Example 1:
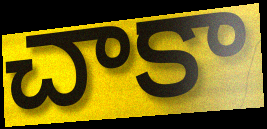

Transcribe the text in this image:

చాకా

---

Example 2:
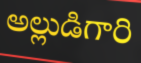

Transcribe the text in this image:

అల్లుడిగారి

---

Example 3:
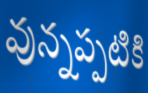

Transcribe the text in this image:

వున్నప్పటికి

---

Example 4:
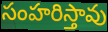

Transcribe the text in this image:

సంహరిస్తావు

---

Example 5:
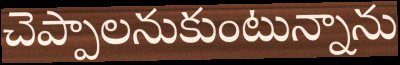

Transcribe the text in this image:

చెప్పాలనుకుంటున్నాను